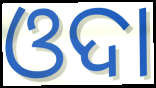
ଓଦା